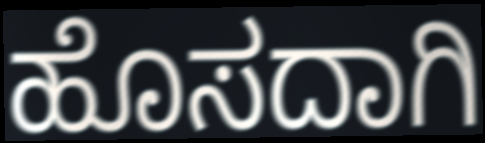
ಹೊಸದಾಗಿ